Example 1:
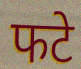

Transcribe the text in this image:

फटे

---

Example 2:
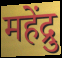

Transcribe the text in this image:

महेंद्रु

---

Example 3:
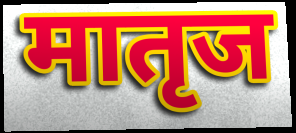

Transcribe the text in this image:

मातृज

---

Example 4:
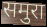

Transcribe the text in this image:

समुरा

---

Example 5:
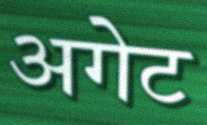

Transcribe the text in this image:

अगेट